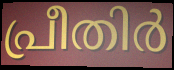
പ്രീതിർ